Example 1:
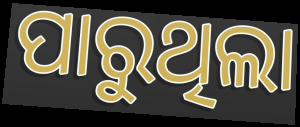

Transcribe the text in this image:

ପାରୁଥିଲା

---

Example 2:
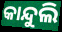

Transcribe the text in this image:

କାନ୍ଦୁଲି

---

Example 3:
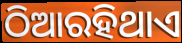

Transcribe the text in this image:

ଠିଆରହିଥାଏ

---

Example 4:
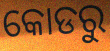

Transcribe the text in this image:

କୋଡରୁ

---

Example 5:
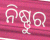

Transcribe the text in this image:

ନିଷ୍ଣୁର